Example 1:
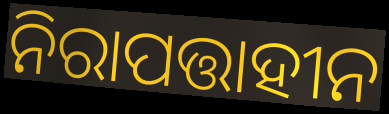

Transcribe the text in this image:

ନିରାପତ୍ତାହୀନ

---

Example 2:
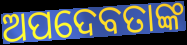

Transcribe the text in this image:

ଅପଦେବତାଙ୍କ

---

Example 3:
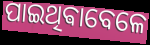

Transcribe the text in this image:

ପାଇଥିଵାବେଳେ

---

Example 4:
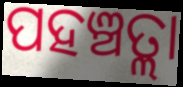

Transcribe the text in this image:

ପହଞ୍ଚତ୍ଲା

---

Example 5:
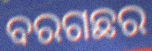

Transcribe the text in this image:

ବରଗଛର